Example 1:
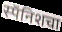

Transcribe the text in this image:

स्पॅनिशचा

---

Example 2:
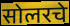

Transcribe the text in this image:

सोलरचे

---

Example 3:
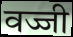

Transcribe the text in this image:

वज्जी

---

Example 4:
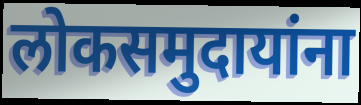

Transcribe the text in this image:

लोकसमुदायांना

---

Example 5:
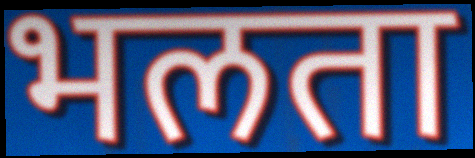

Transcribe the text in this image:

भलता